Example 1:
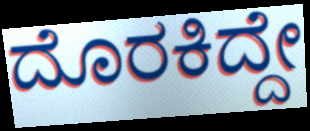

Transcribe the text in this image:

ದೊರಕಿದ್ದೇ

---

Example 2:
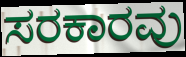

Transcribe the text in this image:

ಸರಕಾರವು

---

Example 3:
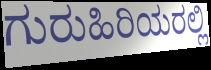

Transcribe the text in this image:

ಗುರುಹಿರಿಯರಲ್ಲಿ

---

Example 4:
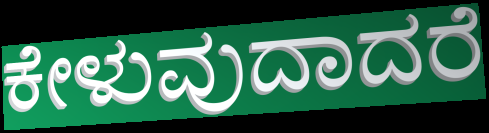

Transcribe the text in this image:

ಕೇಳುವುದಾದರೆ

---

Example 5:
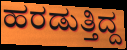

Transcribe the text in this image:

ಹರಡುತ್ತಿದ್ದ